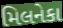
મિલનેકા